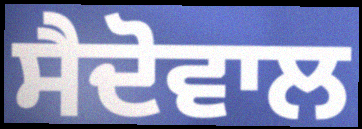
ਸੈਦੋਵਾਲ